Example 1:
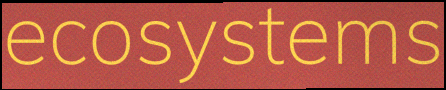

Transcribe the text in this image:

ecosystems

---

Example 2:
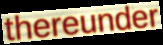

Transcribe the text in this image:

thereunder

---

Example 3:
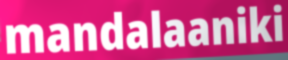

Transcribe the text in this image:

mandalaaniki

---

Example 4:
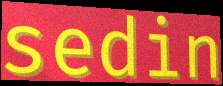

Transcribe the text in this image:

sedin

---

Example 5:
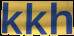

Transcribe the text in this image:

kkh